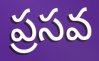
ప్రసవ